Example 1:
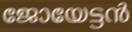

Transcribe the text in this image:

ജോയേട്ടൻ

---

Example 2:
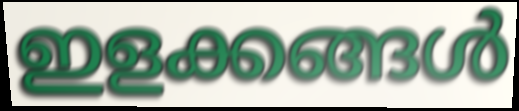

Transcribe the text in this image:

ഇളക്കങ്ങൾ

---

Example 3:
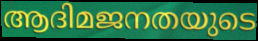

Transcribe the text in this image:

ആദിമജനതയുടെ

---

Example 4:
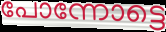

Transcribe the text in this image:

പോന്നോട്ടെ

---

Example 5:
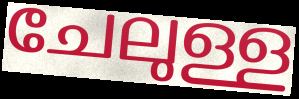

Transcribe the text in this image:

ചേലുള്ള